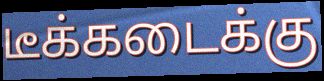
டீக்கடைக்கு